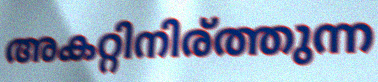
അകറ്റിനിര്ത്തുന്ന